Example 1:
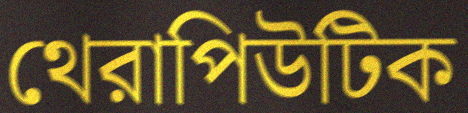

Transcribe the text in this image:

থেরাপিউটিক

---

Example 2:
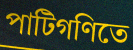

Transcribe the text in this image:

পাটিগণিতে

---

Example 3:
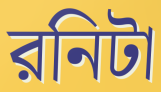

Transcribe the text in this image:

রনিটা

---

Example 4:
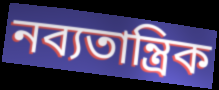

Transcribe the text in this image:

নব্যতান্ত্রিক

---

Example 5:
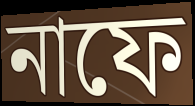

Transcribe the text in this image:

নাফে